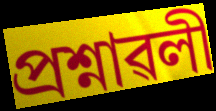
প্ৰশ্নাৱলী